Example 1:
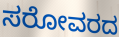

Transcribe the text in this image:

ಸರೋವರದ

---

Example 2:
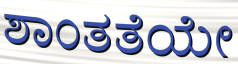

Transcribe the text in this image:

ಶಾಂತತೆಯೇ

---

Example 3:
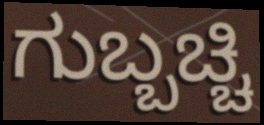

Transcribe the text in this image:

ಗುಬ್ಬಚ್ಚಿ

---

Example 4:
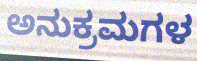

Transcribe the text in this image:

ಅನುಕ್ರಮಗಳ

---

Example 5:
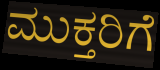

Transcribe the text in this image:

ಮುಕ್ತರಿಗೆ